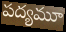
పద్యమూ